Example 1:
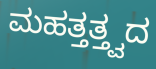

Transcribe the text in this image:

ಮಹತ್ತತ್ತ್ವದ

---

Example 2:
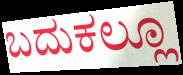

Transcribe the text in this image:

ಬದುಕಲ್ಲೂ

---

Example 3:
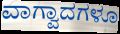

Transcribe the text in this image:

ವಾಗ್ವಾದಗಳೂ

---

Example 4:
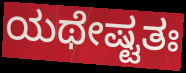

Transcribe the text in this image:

ಯಥೇಷ್ಟತಃ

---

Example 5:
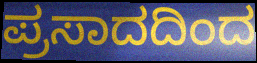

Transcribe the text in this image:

ಪ್ರಸಾದದಿಂದ